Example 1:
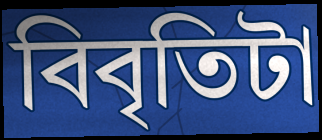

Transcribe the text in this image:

বিবৃতিটা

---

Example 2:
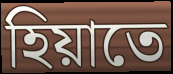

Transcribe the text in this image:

হিয়াতে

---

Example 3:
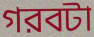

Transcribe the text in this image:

গরবটা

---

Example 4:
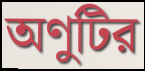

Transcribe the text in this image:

অণুটির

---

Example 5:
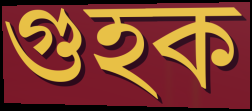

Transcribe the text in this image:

গুহক